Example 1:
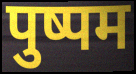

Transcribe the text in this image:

पुष्पम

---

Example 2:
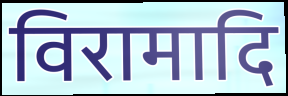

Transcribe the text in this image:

विरामादि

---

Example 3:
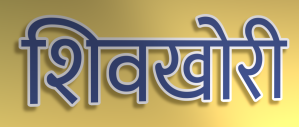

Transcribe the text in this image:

शिवखोरी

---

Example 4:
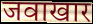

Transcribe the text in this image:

जवाखार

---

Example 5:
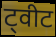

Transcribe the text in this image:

ट्‍वीट